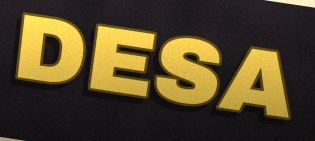
DESA